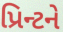
પ્રિન્ટને